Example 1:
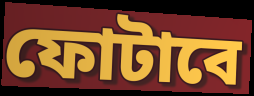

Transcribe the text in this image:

ফোটাবে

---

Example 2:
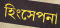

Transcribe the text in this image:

হিংসেপনা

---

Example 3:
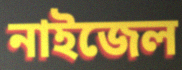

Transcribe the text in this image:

নাইজেল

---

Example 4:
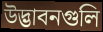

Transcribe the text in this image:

উদ্ভাবনগুলি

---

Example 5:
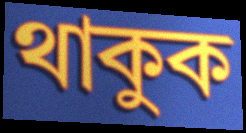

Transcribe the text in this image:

থাকুক